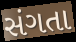
સંગતા